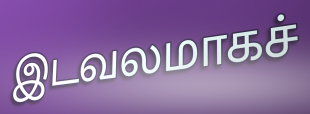
இடவலமாகச்